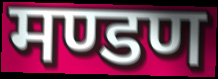
मण्डण